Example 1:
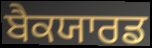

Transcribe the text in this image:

ਬੈਕਯਾਰਡ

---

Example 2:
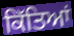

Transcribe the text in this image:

ਕਿੱਤਿਆਂ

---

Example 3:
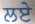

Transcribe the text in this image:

ਲਏ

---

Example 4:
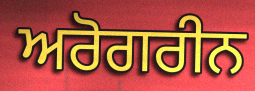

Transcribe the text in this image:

ਅਰੋਗਰੀਨ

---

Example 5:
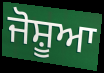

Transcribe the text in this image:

ਜੋਸ਼ੂਆ